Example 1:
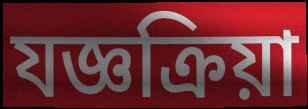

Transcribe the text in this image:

যজ্ঞক্রিয়া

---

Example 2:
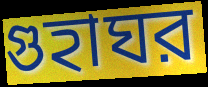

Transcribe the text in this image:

গুহাঘর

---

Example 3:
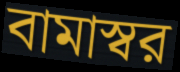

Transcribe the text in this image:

বামাস্বর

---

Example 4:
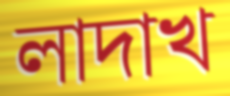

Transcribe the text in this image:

লাদাখ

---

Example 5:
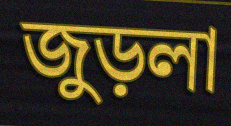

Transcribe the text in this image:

জুড়লা